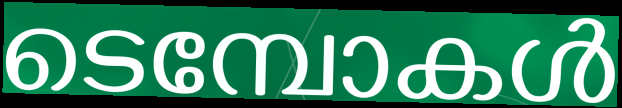
ടെമ്പോകൾ